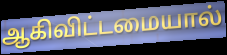
ஆகிவிட்டமையால்